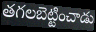
తగలబెట్టించాడు